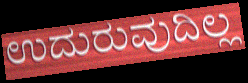
ಉದುರುವುದಿಲ್ಲ